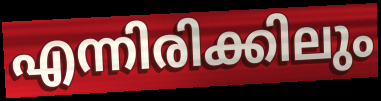
എന്നിരിക്കിലും